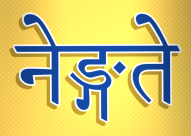
नेङ्गते